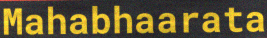
Mahabhaarata